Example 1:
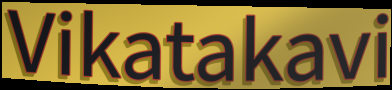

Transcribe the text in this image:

Vikatakavi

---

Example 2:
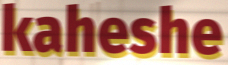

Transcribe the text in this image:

kaheshe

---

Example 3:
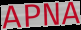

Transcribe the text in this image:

APNA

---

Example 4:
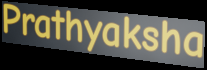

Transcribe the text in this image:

Prathyaksha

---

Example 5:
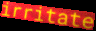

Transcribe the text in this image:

irritate